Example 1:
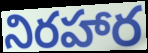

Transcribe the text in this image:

నిరహార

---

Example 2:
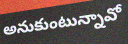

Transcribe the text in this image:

అనుకుంటున్నావో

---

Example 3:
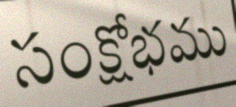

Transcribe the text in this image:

సంక్షోభము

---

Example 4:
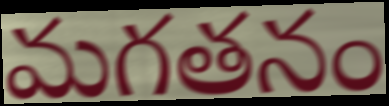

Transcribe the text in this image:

మగతనం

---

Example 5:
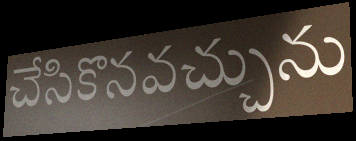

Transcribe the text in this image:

చేసికొనవచ్చును